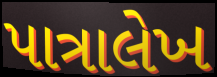
પાત્રાલેખ